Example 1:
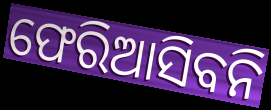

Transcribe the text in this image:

ଫେରିଆସିବନି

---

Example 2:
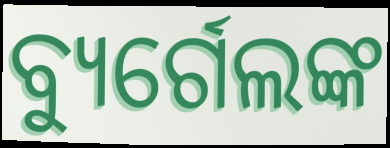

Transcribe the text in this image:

ବ୍ୟୁର୍ଗେଲଙ୍କ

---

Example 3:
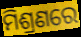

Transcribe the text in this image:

ମିଶ୍ରଣରେ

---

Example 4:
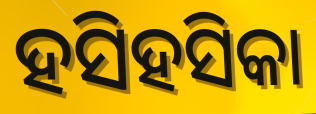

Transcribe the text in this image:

ହସିହସିକା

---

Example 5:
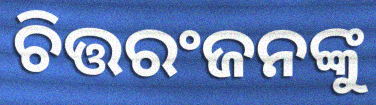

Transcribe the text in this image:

ଚିତ୍ତରଂଜନଙ୍କୁ